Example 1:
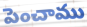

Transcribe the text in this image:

పెంచాము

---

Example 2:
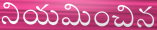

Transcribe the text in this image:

నియమించిన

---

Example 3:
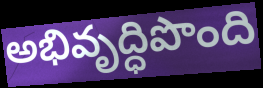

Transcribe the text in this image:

అభివృద్ధిపొంది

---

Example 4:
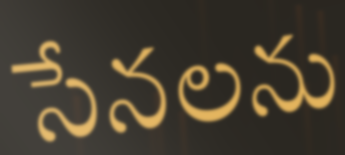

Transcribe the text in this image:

సేనలను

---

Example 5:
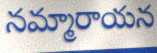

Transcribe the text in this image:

నమ్మారాయన